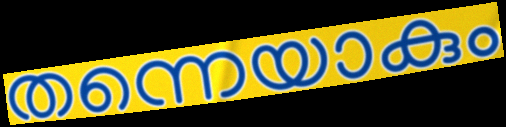
തന്നെയാകും